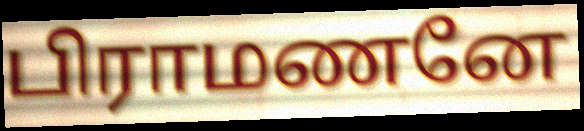
பிராமணனே